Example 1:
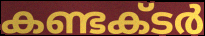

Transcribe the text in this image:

കണ്ടക്‌ടർ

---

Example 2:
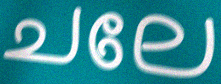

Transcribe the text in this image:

ചലേ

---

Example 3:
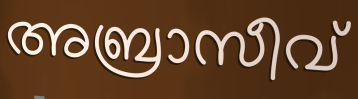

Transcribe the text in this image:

അബ്രാസീവ്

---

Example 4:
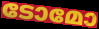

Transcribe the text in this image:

ടോമോ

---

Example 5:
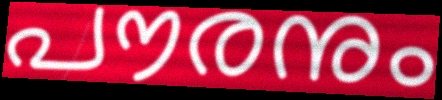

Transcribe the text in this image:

പൗരനും